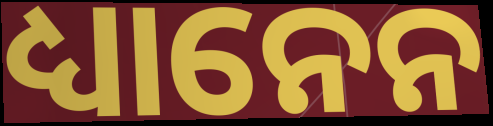
ଧ୍ୟାନେନ